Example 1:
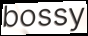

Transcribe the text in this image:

bossy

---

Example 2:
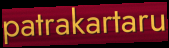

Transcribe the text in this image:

patrakartaru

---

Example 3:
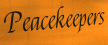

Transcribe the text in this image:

Peacekeepers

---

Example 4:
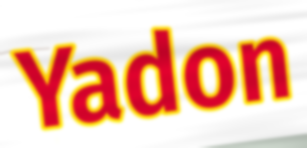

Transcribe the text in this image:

Yadon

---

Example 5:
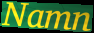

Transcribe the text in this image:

Namn